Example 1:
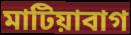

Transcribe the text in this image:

মাটিয়াবাগ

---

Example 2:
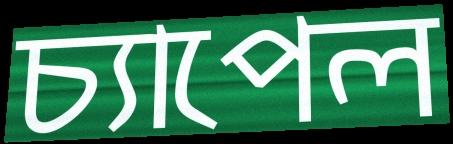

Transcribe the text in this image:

চ্যাপেল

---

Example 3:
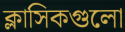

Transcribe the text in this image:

ক্লাসিকগুলো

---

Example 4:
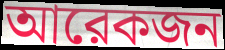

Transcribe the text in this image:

আরেকজন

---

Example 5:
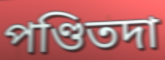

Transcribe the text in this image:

পণ্ডিতদা